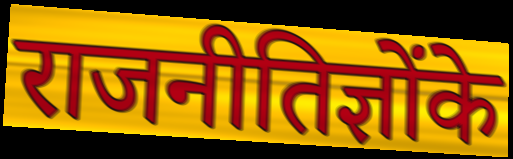
राजनीतिज्ञोंके